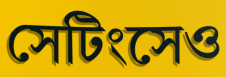
সেটিংসেও